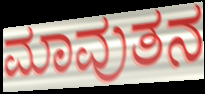
ಮಾವುತನ